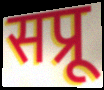
सप्रू